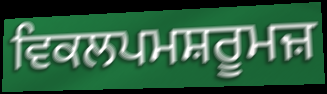
ਵਿਕਲਪਮਸ਼ਰੂਮਜ਼